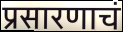
प्रसारणाचं